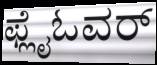
ಫ್ಲೈಓವರ್